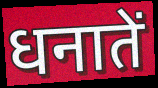
धनातें